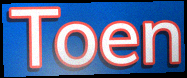
Toen